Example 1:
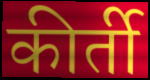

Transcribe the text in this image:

कीर्ती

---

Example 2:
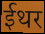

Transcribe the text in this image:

ईथर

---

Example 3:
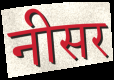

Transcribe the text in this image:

नीसर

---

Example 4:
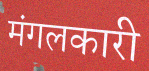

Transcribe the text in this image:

मंगलकारी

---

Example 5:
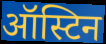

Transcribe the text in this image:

ऑस्टिन